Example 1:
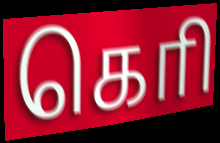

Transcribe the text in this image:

கெரி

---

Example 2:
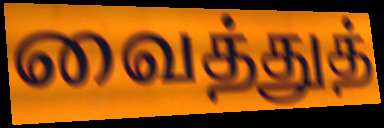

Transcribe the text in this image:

வைத்துத்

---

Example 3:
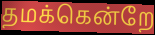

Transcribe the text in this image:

தமக்கென்றே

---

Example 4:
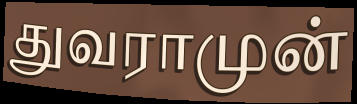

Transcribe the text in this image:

துவராமுன்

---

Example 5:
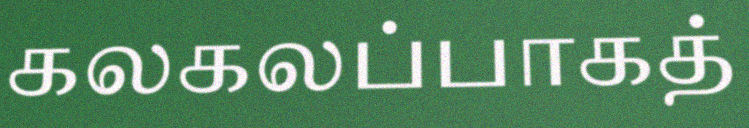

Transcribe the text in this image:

கலகலப்பாகத்